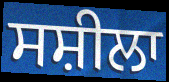
ਸਸ਼ੀਲਾ